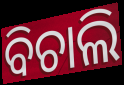
ବିଚାଲି